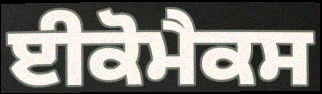
ਈਕੋਮੈਕਸ